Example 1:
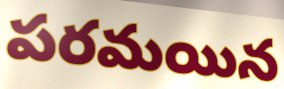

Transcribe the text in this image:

పరమయిన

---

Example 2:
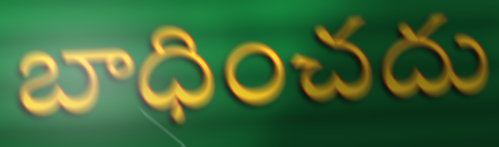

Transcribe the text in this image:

బాధించదు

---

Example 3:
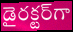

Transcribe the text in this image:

డైరక్టర్‌గా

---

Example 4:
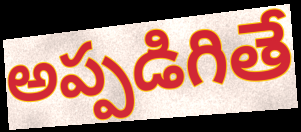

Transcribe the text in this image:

అప్పడిగితే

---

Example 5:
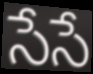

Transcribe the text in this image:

సేసే